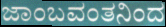
ಜಾಂಬವಂತನಿಂದ